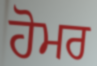
ਹੋਮਰ